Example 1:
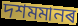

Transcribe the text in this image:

দশমমানৰ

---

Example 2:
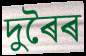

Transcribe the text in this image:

দুৰৈৰ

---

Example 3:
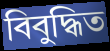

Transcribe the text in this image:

বিবুদ্ধিত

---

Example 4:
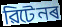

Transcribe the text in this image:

ৱিটেনৰ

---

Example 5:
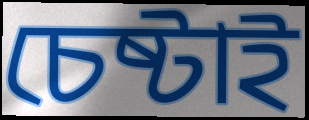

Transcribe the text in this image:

চেষ্টাই